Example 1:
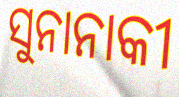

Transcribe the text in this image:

ସୁନାନାକୀ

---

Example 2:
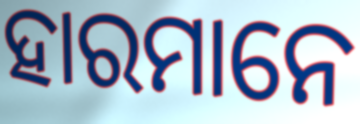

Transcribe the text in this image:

ହାରମାନେ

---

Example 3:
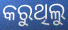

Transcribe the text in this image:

କରୁଥିଲୁ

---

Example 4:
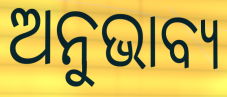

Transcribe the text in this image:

ଅନୁଭାବ୍ୟ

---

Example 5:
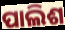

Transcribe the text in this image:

ପାଲିଶ